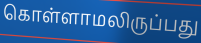
கொள்ளாமலிருப்பது